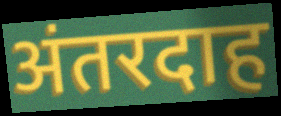
अंतरदाह